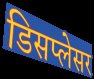
डिसप्लेसर